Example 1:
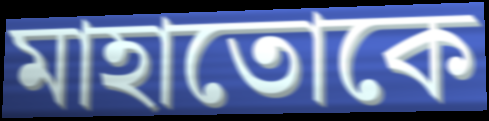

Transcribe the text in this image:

মাহাতোকে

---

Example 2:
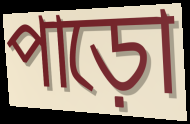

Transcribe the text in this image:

পাড়ো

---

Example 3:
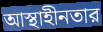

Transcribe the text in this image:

আস্থাহীনতার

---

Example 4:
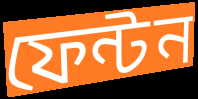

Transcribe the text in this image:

ফেন্টন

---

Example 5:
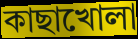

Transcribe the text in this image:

কাছাখোলা